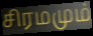
சிரமமும்